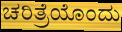
ಚರಿತ್ರೆಯೊಂದು